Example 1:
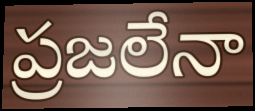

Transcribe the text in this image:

ప్రజలేనా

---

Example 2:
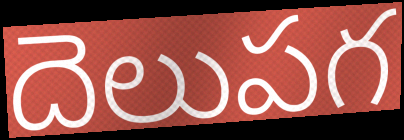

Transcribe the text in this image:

దెలుపగ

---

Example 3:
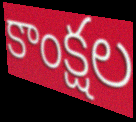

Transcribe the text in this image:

కాంక్షల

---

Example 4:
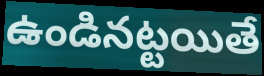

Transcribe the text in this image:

ఉండినట్టయితే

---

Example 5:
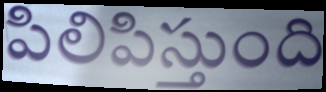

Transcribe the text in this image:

పిలిపిస్తుంది